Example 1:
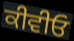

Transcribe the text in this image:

ਕੀਵੀਓ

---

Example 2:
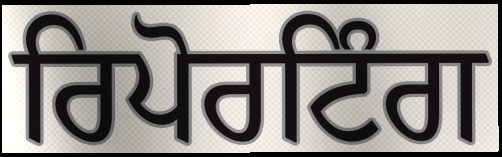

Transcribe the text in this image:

ਰਿਪੋਰਟਿੰਗ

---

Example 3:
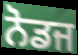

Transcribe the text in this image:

ਨੋਡਜ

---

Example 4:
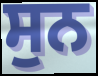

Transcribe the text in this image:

ਸੁਨ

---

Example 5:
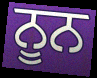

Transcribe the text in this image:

ਨੂਨ